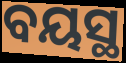
ବୟସ୍ଥ